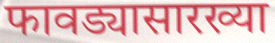
फावड्यासारख्या